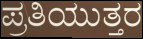
ಪ್ರತಿಯುತ್ತರ